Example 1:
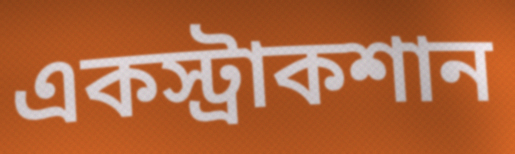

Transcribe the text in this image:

একস্ট্রাকশান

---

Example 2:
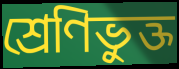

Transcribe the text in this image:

শ্রেণিভুক্ত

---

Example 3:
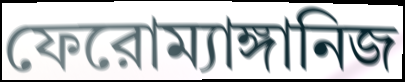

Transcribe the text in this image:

ফেরোম্যাঙ্গানিজ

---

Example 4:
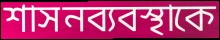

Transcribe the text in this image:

শাসনব্যবস্থাকে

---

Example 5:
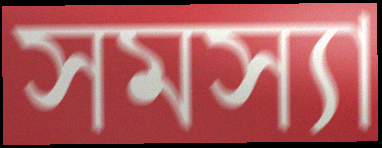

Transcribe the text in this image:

সমস্যা